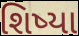
શિષ્યા